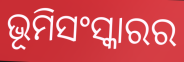
ଭୂମିସଂସ୍କାରର